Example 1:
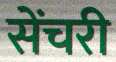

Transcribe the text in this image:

सेंचरी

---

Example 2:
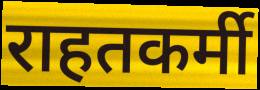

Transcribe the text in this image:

राहतकर्मी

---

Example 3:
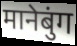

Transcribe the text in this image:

मानेबुंग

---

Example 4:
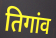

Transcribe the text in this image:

तिगांव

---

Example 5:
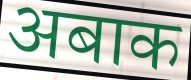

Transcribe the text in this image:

अबाक